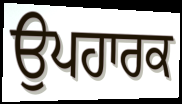
ਉਪਹਾਰਕ